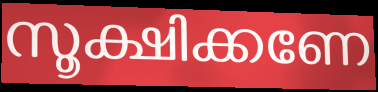
സൂക്ഷിക്കണേ